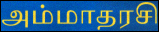
அம்மாதரசி